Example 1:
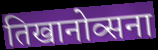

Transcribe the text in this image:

तिखानोव्सना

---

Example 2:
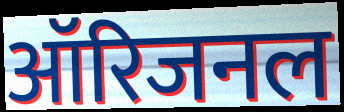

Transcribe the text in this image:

ऑरिजनल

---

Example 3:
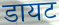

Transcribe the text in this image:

डायट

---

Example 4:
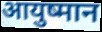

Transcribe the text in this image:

आयुष्मान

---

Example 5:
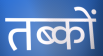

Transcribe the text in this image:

तब्कों